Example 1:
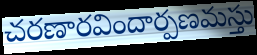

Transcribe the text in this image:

చరణారవిందార్పణమస్తు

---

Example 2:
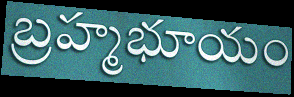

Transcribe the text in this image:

బ్రహ్మభూయం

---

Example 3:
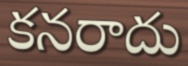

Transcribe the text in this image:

కనరాదు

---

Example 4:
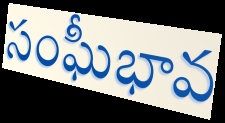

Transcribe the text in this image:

సంఘీభావ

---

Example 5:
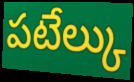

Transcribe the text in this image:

పటేల్కు